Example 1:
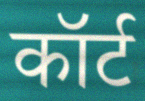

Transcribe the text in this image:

कॉर्ट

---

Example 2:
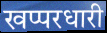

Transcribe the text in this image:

खप्परधारी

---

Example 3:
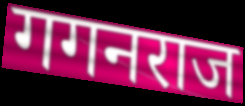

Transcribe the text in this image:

गगनराज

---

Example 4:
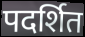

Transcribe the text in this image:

पदर्शित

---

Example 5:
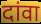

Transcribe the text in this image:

दांवा